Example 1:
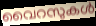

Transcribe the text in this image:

വൈറസുകൾ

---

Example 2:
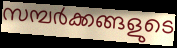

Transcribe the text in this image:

സമ്പർക്കങ്ങളുടെ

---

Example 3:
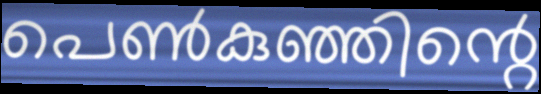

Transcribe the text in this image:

പെൺകുഞ്ഞിന്റെ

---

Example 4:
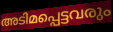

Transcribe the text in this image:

അടിമപ്പെട്ടവരും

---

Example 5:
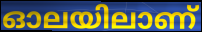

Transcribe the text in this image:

ഓലയിലാണ്